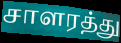
சாளரத்து